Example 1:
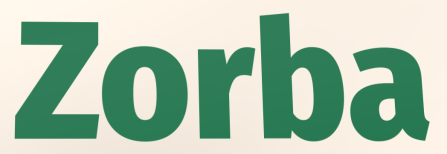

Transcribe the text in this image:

Zorba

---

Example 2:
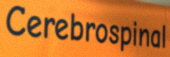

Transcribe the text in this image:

Cerebrospinal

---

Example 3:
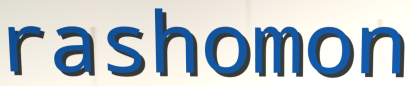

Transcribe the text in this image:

rashomon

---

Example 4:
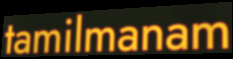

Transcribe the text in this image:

tamilmanam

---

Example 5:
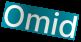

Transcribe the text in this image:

Omid